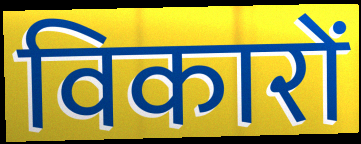
विकारों